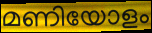
മണിയോളം